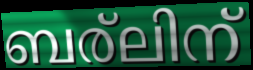
ബര്ലിന്